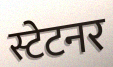
स्टेटनर